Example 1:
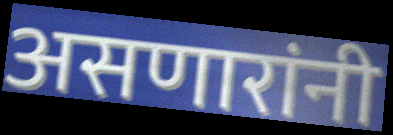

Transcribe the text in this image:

असणारांनी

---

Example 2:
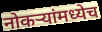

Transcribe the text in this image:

नोकऱ्यांमध्येच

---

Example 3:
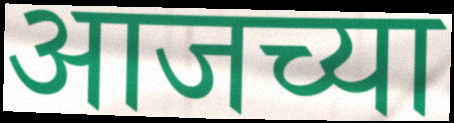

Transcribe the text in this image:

आजच्या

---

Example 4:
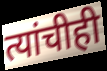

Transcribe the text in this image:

त्यांचीही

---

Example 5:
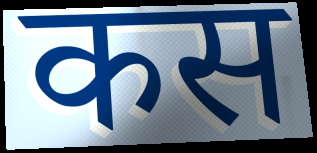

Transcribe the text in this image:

कस